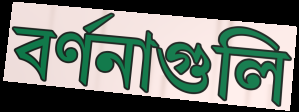
বর্ণনাগুলি